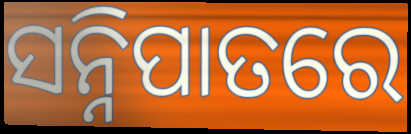
ସନ୍ନିପାତରେ